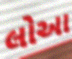
લોઆ